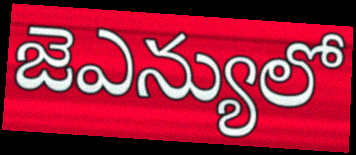
జెఎన్యులో